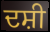
ਦਸ਼ੀ